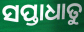
ସପ୍ତାଧାତୁ